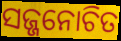
ସଜ୍ଜନୋଚିତ